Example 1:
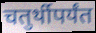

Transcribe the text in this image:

चतुर्थीपर्यंत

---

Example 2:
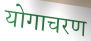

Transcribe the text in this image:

योगाचरण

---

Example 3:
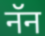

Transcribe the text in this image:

नॅन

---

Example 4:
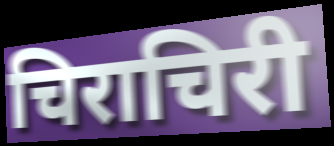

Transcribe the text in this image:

चिराचिरी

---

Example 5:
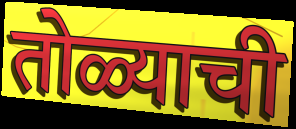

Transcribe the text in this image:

तोळ्याची